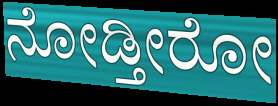
ನೋಡ್ತೀರೋ